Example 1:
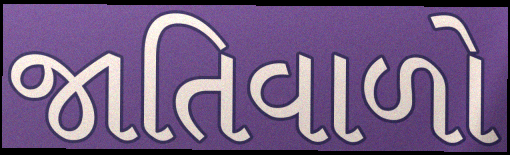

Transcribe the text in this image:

જાતિવાળો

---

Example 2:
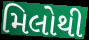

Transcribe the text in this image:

મિલોથી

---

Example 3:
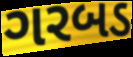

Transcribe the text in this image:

ગરબડ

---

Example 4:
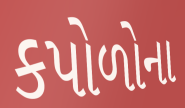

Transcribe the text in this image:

કપોળોના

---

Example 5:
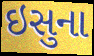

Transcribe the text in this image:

ઇસુના